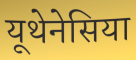
यूथेनेसिया